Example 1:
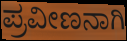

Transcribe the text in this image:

ಪ್ರವೀಣನಾಗಿ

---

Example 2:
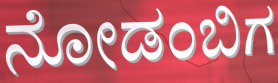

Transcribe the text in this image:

ನೋಡಂಬಿಗ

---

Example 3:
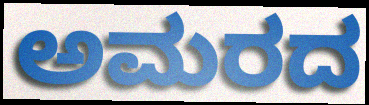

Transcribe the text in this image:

ಅಮರದ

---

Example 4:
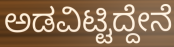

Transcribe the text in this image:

ಅಡವಿಟ್ಟಿದ್ದೇನೆ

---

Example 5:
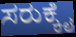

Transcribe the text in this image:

ಸರುಕ್ಕೈ